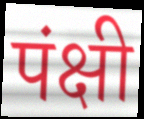
पंक्षी